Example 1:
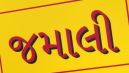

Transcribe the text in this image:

જમાલી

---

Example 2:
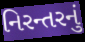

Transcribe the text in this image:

નિરન્તરનું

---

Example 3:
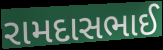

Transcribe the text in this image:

રામદાસભાઈ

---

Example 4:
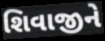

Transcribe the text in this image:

શિવાજીને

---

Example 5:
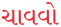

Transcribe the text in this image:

ચાવવો